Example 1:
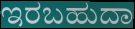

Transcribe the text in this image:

ಇರಬಹುದಾ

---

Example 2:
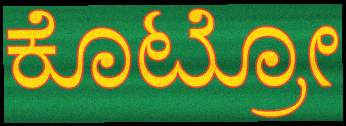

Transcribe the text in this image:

ಕೊಟ್ರೋ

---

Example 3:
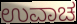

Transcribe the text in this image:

ಉವಾಚ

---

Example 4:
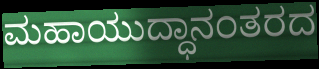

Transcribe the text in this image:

ಮಹಾಯುದ್ಧಾನಂತರದ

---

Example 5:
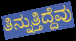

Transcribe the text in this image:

ತಿನ್ನುತ್ತಿದ್ದೆವು